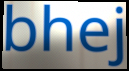
bhej